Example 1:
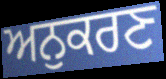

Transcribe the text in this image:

ਅਨੁਕਰਣ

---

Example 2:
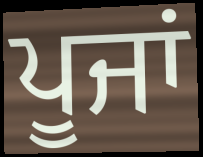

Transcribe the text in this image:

ਪੂਜਾਂ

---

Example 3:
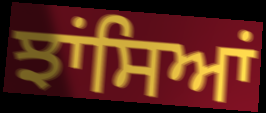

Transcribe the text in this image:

ਝਾਂਸਿਆਂ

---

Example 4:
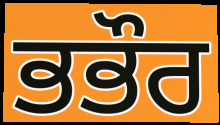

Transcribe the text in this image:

ਭਭੌਰ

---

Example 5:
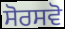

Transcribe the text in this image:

ਸੋਰਸਵੋ